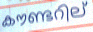
കൗണ്ടറില്